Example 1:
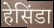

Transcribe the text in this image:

हेसिंडा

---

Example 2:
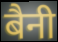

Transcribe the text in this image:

बैनी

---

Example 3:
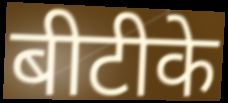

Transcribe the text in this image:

बीटीके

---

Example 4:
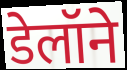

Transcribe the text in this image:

डेलॉने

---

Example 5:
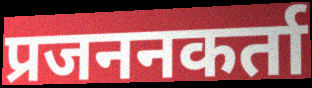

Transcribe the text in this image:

प्रजननकर्ता